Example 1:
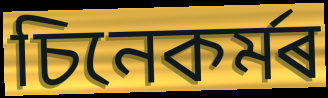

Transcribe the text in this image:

চিনেকৰ্মৰ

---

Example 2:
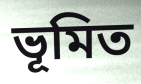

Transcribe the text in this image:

ভূমিত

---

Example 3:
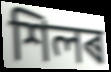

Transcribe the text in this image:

শিলৰ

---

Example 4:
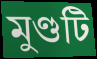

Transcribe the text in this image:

মুণ্ডটি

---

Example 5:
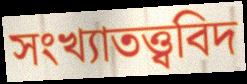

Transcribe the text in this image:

সংখ্যাতত্ত্ববিদ